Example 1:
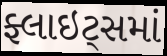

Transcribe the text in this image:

ફ્લાઇટ્સમાં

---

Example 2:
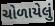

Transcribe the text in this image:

ચોળાયેલું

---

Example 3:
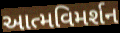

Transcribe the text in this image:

આત્મવિમર્શન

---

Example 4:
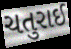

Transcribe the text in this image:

ચતુરાઈ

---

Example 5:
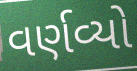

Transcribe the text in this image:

વર્ણવ્યો